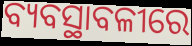
ବ୍ୟବସ୍ଥାବଳୀରେ